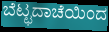
ಬೆಟ್ಟದಾಚೆಯಿಂದ